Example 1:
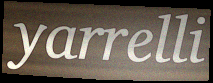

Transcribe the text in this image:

yarrelli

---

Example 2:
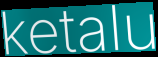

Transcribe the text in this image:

ketalu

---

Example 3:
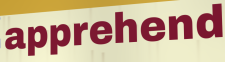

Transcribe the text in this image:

apprehend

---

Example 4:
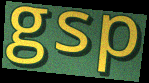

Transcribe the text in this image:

gsp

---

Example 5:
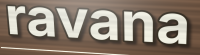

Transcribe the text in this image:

ravana